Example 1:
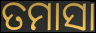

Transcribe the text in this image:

ତମାସା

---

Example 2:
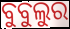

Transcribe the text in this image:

ବୁବୁଲୁର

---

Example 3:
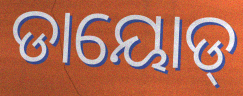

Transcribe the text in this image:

ଡାୟୋଡ୍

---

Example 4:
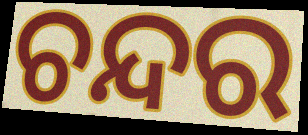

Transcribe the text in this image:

ଚନ୍ଦର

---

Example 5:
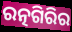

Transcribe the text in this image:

ରତ୍ନଗିରିର